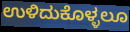
ಉಳಿದುಕೊಳ್ಳಲೂ